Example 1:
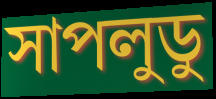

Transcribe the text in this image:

সাপলুডু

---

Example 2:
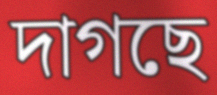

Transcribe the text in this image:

দাগছে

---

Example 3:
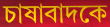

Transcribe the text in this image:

চাষাবাদকে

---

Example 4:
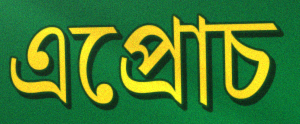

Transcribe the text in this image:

এপ্রোচ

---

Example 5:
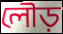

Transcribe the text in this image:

লৌড়